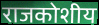
राजकोशीय